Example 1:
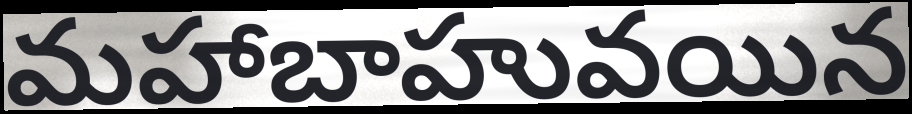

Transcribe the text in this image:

మహాబాహువయిన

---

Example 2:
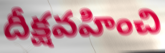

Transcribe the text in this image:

దీక్షవహించి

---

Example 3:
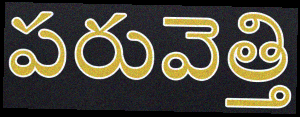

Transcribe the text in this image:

పరువెత్తి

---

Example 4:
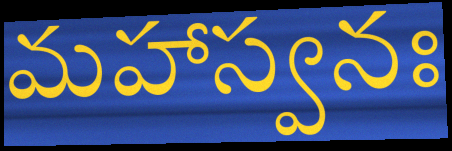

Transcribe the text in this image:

మహాస్వనః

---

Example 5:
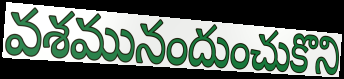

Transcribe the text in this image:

వశమునందుంచుకొని